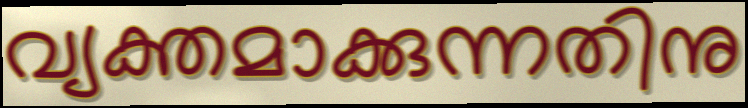
വ്യക്തമാക്കുന്നതിനു